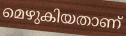
മെഴുകിയതാണ്